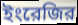
ইংরেজির